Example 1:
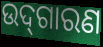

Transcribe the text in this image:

ଉଦ୍‌ଗାରଣ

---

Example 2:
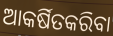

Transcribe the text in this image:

ଆକର୍ଷିତକରିବା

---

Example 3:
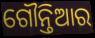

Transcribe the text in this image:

ଗୌନ୍ତିଆର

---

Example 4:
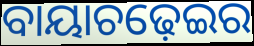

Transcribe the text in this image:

ବାୟାଚଢ଼େଇର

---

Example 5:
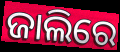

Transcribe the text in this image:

ଜାଲିରେ